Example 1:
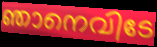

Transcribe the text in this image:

ഞാനെവിടേ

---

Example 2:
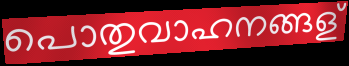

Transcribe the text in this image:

പൊതുവാഹനങ്ങള്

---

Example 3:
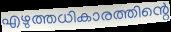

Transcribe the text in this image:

എഴുത്തധികാരത്തിന്റെ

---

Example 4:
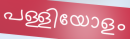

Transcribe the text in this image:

പള്ളിയോളം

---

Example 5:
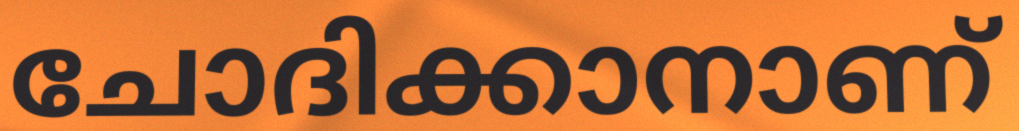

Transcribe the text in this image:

ചോദിക്കാനാണ്